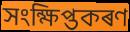
সংক্ষিপ্তকৰণ